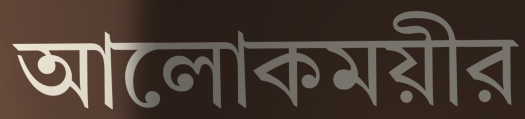
আলোকময়ীর